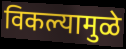
विकल्यामुळे